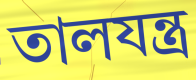
তালযন্ত্র